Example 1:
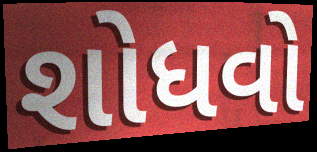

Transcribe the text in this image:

શોધવો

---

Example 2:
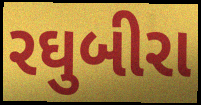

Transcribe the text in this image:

રઘુબીરા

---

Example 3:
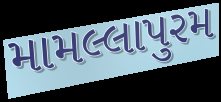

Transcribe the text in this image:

મામલ્લાપુરમ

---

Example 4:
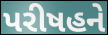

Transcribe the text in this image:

પરીષહને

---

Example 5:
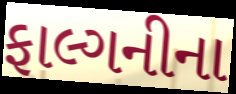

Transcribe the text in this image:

ફાલ્ગનીના